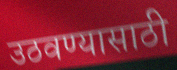
उठवण्यासाठी